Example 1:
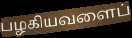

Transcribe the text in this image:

பழகியவளைப்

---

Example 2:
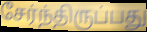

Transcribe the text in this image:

சேர்ந்திருப்பது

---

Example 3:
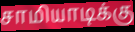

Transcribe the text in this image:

சாமியாடிக்கு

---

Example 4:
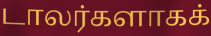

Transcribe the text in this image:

டாலர்களாகக்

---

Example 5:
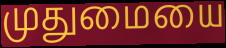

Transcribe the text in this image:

முதுமையை